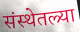
संस्थेतल्या